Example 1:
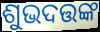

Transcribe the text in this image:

ଶୁଭଦତ୍ତଙ୍କ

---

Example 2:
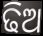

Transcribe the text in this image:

ଢିଅ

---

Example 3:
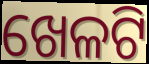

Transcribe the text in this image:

ଖେଳଟି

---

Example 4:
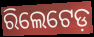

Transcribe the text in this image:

ରିଲେଟେଡ଼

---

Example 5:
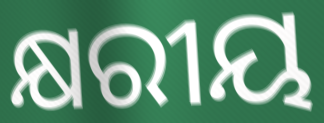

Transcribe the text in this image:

କ୍ଷରୀୟ